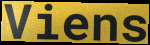
Viens